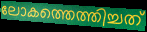
ലോകത്തെത്തിച്ചത്